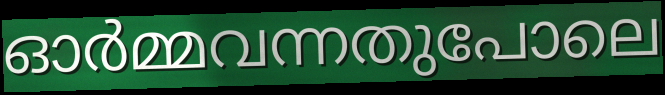
ഓർമ്മവന്നതുപോലെ